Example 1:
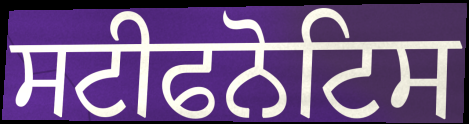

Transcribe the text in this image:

ਸਟੀਫਨੋਟਿਸ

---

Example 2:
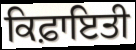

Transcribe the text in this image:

ਕਿਫ਼ਾਇਤੀ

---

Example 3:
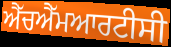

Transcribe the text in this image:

ਐੱਚਐੱਮਆਰਟੀਸੀ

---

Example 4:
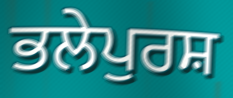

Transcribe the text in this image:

ਭਲੇਪੁਰਸ਼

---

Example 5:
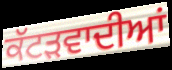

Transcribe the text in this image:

ਕੱਟੜਵਾਦੀਆਂ